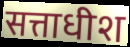
सत्ताधीश